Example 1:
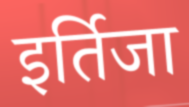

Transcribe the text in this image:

इर्तिजा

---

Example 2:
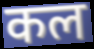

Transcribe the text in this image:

कल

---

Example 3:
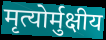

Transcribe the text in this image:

मृत्‍योर्मुक्षीय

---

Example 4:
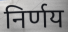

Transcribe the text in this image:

निर्णय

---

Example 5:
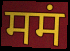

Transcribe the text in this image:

ममं